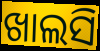
ଖାଲସି